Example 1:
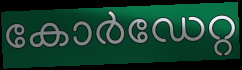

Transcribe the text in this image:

കോർഡേറ്റ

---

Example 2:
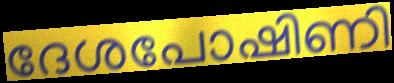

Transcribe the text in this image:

ദേശപോഷിണി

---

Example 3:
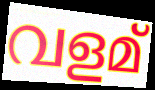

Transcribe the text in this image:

വളമ്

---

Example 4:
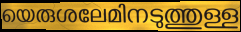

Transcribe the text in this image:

യെരുശലേമിനടുത്തുള്ള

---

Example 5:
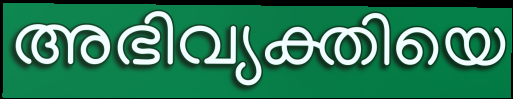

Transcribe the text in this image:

അഭിവ്യക്തിയെ